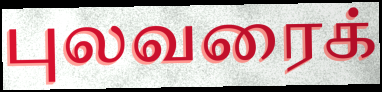
புலவரைக்